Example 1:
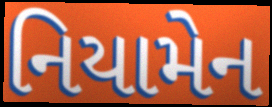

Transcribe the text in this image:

નિયામેન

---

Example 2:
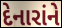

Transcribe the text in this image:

દેનારાંને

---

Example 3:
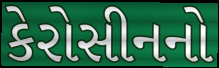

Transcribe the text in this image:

કેરોસીનનો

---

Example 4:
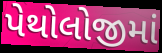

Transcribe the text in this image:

પેથોલોજીમાં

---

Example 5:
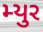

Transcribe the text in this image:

મ્યુર